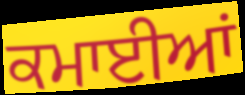
ਕਮਾਈਆਂ